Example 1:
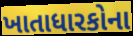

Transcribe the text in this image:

ખાતાધારકોના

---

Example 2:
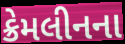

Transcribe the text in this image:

ક્રેમલીનના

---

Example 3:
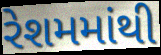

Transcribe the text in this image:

રેશમમાંથી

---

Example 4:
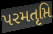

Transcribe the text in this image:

પરમતૃપ્તિ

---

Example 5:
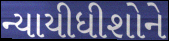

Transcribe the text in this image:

ન્યાયીધીશોને